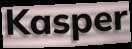
Kasper